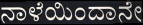
ನಾಳೆಯಿಂದಾನೇ